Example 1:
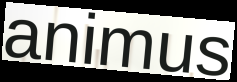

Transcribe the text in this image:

animus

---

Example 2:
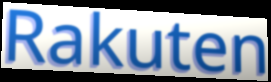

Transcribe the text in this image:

Rakuten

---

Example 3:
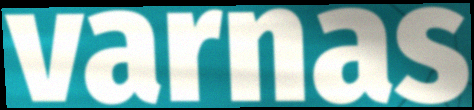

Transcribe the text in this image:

varnas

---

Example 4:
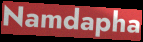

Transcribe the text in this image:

Namdapha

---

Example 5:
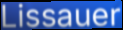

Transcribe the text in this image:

Lissauer